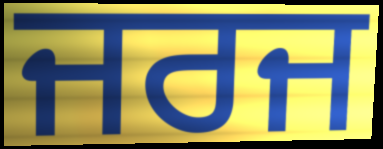
ਜਰਜ